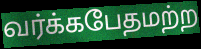
வர்க்கபேதமற்ற